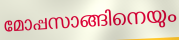
മോപ്പസാങ്ങിനെയും